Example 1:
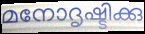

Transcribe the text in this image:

മനോദൃഷ്ടിക്കു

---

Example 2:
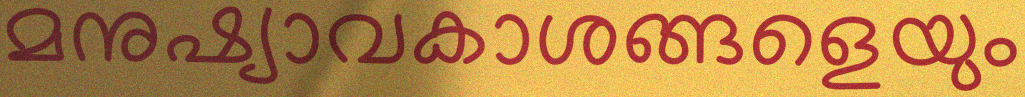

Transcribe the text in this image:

മനുഷ്യാവകാശങ്ങളെയും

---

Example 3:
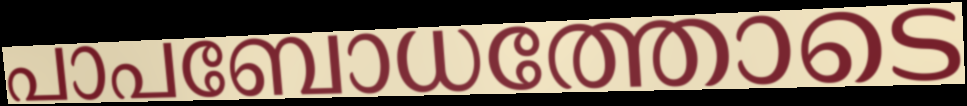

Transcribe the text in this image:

പാപബോധത്തോടെ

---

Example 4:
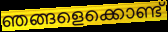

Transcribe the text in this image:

ഞങ്ങളെക്കൊണ്ട്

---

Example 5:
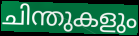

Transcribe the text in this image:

ചിന്തുകളും